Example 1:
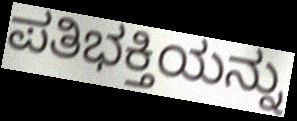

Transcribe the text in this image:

ಪತಿಭಕ್ತಿಯನ್ನು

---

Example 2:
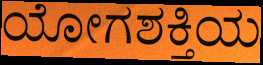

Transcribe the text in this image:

ಯೋಗಶಕ್ತಿಯ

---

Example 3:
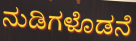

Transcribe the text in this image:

ನುಡಿಗಳೊಡನೆ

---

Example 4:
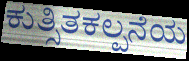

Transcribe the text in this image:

ಕುತ್ಸಿತಕಲ್ಪನೆಯ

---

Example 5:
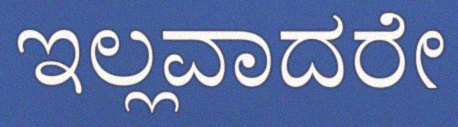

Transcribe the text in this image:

ಇಲ್ಲವಾದರೇ